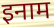
इनाम